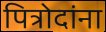
पित्रोदांना